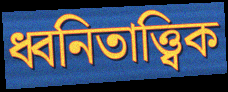
ধ্বনিতাত্ত্বিক